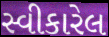
સ્વીકારેલ